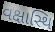
વક્ષાસ્થિ